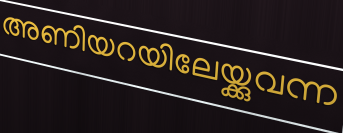
അണിയറയിലേയ്ക്കുവന്ന